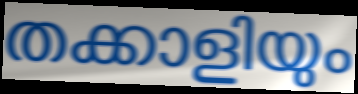
തക്കാളിയും